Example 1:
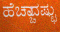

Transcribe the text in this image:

ಹೆಚ್ಚಾದಷ್ಟು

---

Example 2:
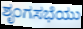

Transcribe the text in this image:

ಶೃಂಗಸಭೆಯು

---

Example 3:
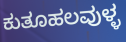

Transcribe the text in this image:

ಕುತೂಹಲವುಳ್ಳ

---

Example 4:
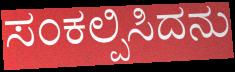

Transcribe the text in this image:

ಸಂಕಲ್ಪಿಸಿದನು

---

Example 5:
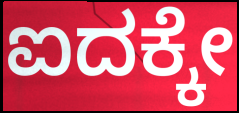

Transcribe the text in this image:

ಐದಕ್ಕೇ